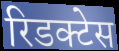
रिडक्टेस